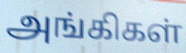
அங்கிகள்